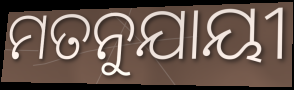
ମତନୁଯାୟୀ